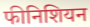
फीनिशियन